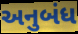
અનુબંધ